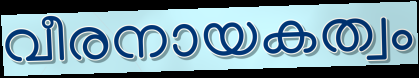
വീരനായകത്വം